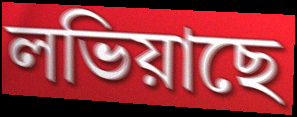
লভিয়াছে